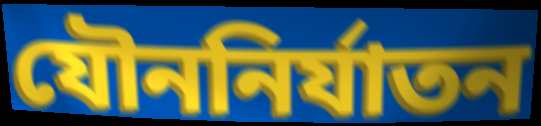
যৌননির্যাতন